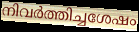
നിവർത്തിച്ചശേഷം